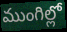
ముంగిల్లో